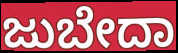
ಜುಬೇದಾ